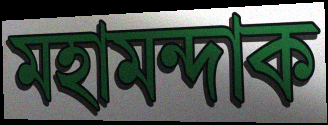
মহামন্দাক